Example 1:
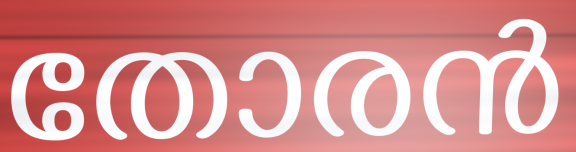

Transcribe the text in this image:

തോരൻ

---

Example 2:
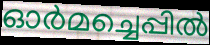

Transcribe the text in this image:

ഓർമച്ചെപ്പിൽ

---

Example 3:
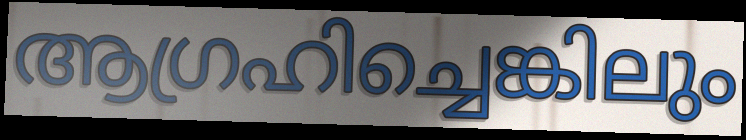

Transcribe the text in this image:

ആഗ്രഹിച്ചെങ്കിലും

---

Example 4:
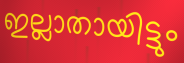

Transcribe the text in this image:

ഇല്ലാതായിട്ടും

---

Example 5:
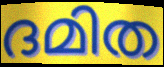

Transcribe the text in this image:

ദമിത